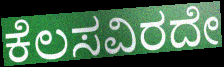
ಕೆಲಸವಿರದೇ